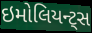
ઇમોલિયન્ટ્સ